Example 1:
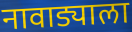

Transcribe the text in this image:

नावाड्याला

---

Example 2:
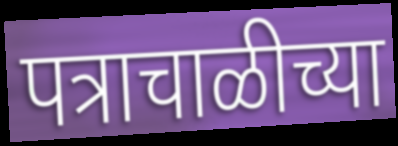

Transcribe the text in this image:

पत्राचाळीच्या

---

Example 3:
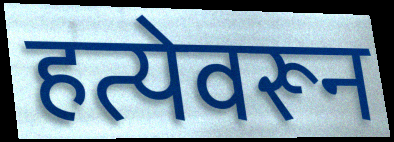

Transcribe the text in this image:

हत्येवरून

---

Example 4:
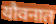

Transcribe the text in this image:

यौवनात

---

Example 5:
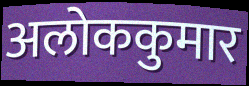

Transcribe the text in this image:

अलोककुमार